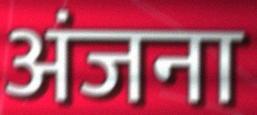
अंजना